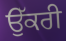
ਉੱਕਰੀ